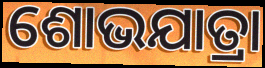
ଶୋଭଯାତ୍ରା